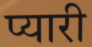
प्यारी